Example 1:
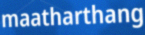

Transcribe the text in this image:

maatharthang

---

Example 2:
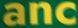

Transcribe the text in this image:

anc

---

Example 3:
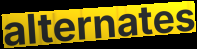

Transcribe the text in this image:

alternates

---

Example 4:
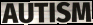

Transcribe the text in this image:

AUTISM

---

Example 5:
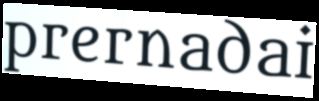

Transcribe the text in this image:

prernadai